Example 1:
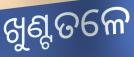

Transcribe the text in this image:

ଖୁଣ୍ଟତଳେ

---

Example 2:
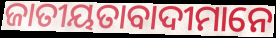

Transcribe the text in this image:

ଜାତୀୟତାବାଦୀମାନେ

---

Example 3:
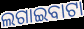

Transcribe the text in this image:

ଲଗାଇବାଟା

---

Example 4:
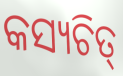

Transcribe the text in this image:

କସ୍ୟଚିତ୍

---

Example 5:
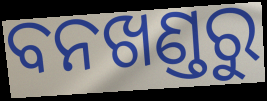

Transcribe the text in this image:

ବନଖଣ୍ଡରୁ